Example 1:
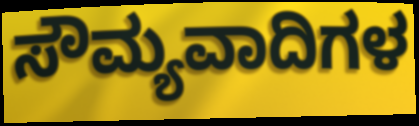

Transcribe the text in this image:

ಸೌಮ್ಯವಾದಿಗಳ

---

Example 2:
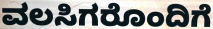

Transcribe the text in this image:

ವಲಸಿಗರೊಂದಿಗೆ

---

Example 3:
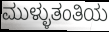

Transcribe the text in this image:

ಮುಳ್ಳುತಂತಿಯ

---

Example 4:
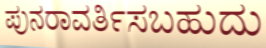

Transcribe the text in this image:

ಪುನರಾವರ್ತಿಸಬಹುದು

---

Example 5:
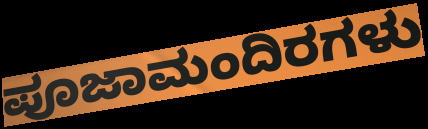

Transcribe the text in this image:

ಪೂಜಾಮಂದಿರಗಳು